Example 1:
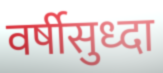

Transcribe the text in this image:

वर्षीसुध्दा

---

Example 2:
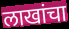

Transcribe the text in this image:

लाखांचा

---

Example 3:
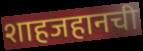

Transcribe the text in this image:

शाहजहानची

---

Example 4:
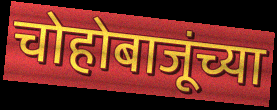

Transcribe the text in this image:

चोहोबाजूंच्या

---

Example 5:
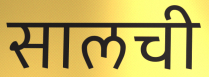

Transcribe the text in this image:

सालची